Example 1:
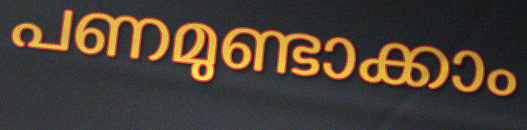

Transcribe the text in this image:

പണമുണ്ടാക്കാം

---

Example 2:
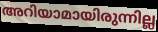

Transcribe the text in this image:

അറിയാമായിരുന്നില്ല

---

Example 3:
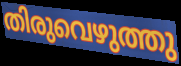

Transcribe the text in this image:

തിരുവെഴുത്തു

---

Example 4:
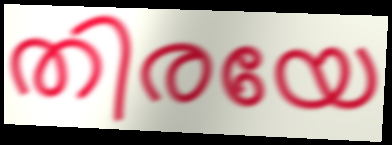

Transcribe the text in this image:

തിരയേ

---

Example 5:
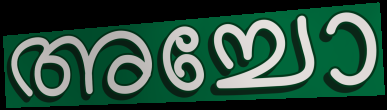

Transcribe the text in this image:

അച്ചോ